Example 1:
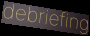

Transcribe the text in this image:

debriefing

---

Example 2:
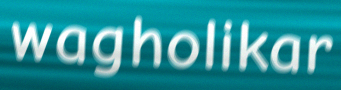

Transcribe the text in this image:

wagholikar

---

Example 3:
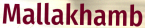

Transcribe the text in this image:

Mallakhamb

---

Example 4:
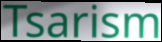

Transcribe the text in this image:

Tsarism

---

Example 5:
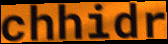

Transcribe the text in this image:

chhidr